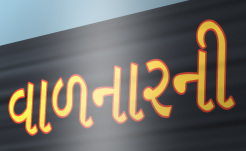
વાળનારની